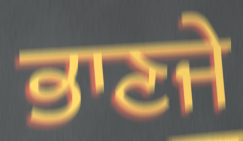
ਭਾਣਜੇ